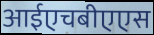
आईएचबीएएस